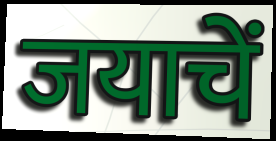
जयाचें